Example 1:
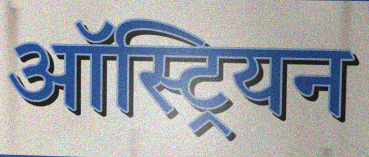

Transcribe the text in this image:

ऑस्ट्रियन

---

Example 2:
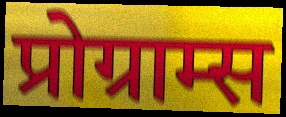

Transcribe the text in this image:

प्रोग्राम्‍स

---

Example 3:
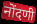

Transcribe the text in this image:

नोंदणी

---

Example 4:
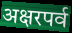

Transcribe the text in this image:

अक्षरपर्व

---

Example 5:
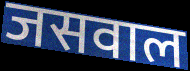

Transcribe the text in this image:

जसवाल